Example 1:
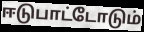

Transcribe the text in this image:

ஈடுபாட்டோடும்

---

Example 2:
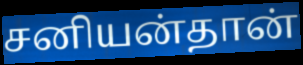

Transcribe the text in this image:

சனியன்தான்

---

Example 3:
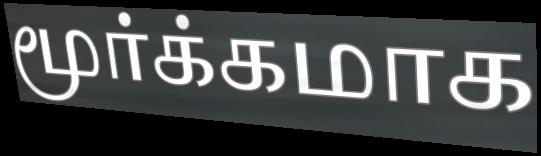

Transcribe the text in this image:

மூர்க்கமாக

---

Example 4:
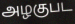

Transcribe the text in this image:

அழகுபட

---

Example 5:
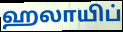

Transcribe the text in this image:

ஹலாயிப்